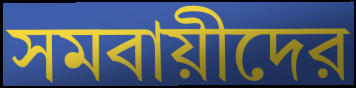
সমবায়ীদের